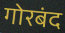
गोरबंद